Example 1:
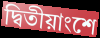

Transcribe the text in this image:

দ্বিতীয়াংশে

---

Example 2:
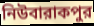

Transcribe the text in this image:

নিউবারাকপুর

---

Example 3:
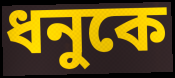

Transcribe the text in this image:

ধনুকে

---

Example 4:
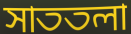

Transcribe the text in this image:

সাততলা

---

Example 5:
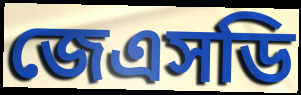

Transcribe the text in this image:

জেএসডি